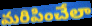
మరిపించేలా